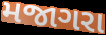
મજાગરા